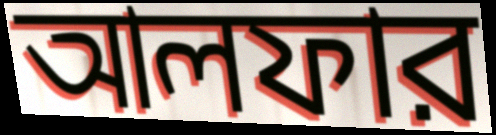
আলফার